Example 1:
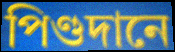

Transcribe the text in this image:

পিণ্ডদানে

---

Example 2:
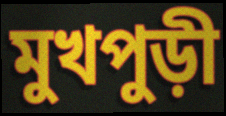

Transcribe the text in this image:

মুখপুড়ী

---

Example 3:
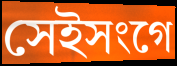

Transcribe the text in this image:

সেইসংগে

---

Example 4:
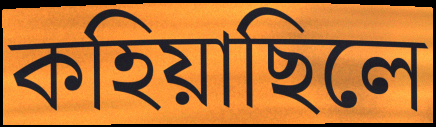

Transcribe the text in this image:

কহিয়াছিলে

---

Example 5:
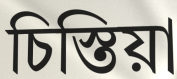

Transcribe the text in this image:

চিস্তিয়া